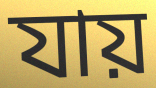
যায়